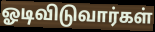
ஓடிவிடுவார்கள்